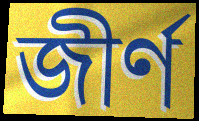
জীর্ণ